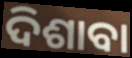
ଦିଶାବା